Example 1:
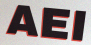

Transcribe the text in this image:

AEI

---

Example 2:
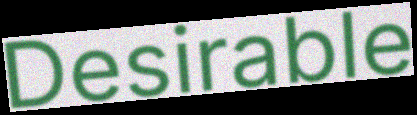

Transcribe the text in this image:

Desirable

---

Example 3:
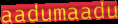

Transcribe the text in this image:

aadumaadu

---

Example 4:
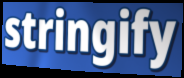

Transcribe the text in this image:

stringify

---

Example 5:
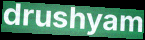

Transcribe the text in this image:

drushyam